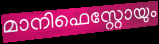
മാനിഫെസ്റ്റോയും